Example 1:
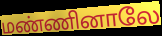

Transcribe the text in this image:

மண்ணினாலே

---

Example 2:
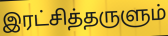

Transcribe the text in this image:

இரட்சித்தருளும்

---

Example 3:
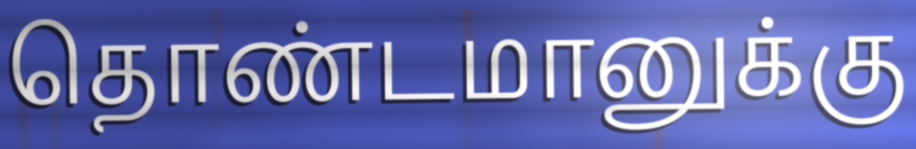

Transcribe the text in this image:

தொண்டமானுக்கு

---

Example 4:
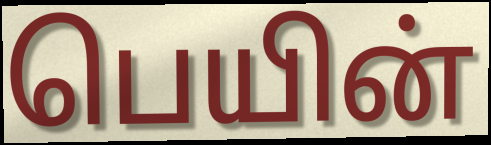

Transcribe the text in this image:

பெயின்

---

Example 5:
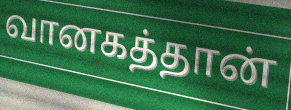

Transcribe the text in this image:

வானகத்தான்